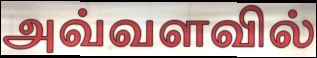
அவ்வளவில்